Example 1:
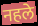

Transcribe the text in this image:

नहले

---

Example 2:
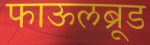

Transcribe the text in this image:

फाऊलब्रूड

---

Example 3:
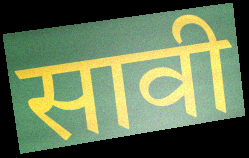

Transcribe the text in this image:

सावी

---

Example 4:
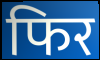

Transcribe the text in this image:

फिर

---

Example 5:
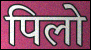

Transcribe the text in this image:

पिलो